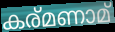
കര്മണാമ്